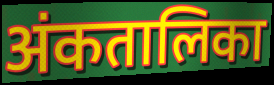
अंकतालिका